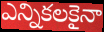
ఎన్నికలకైనా